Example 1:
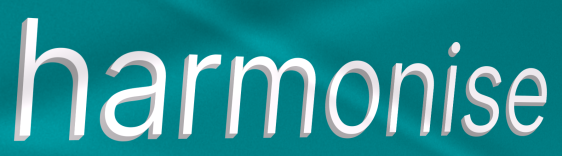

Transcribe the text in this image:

harmonise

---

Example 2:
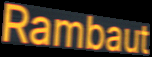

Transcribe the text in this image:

Rambaut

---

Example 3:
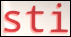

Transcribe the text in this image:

sti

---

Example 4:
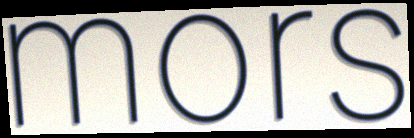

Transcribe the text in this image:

mors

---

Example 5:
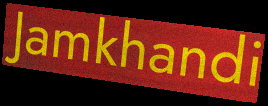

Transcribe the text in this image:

Jamkhandi